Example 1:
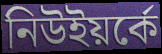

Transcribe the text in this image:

নিউইয়র্কে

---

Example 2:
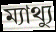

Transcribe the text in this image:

ম্যাথ্যু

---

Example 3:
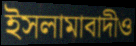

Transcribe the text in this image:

ইসলামাবাদীও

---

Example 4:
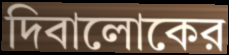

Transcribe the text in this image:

দিবালোকের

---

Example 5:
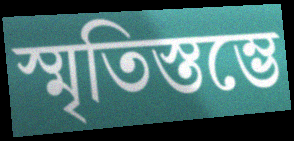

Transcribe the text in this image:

স্মৃতিস্তম্ভে